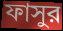
ফাসুর